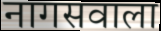
नागसवाला